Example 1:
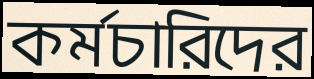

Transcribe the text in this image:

কর্মচারিদের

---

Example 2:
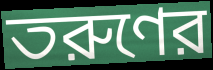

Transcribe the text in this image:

তরুণের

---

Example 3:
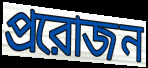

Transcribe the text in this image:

প্ররোজন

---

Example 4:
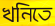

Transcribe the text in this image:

খনিতে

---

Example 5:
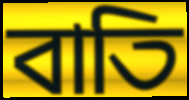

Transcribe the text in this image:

বাতি